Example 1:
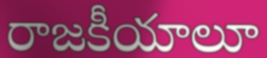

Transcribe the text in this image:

రాజకీయాలూ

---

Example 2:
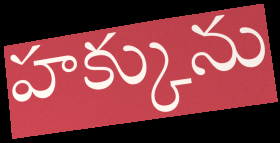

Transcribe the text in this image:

హక్కును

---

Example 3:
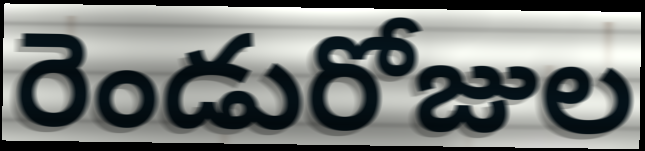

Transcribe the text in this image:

రెండురోజుల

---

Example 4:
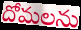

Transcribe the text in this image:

దోమలను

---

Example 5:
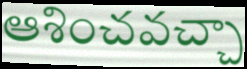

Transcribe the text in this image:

ఆశించవచ్చా